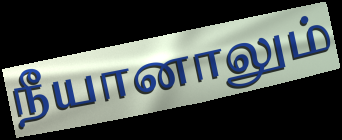
நீயானாலும்